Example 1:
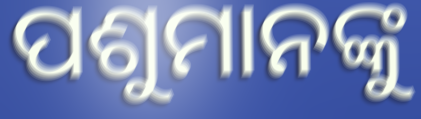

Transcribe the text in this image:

ପଶୁମାନଙ୍କୁ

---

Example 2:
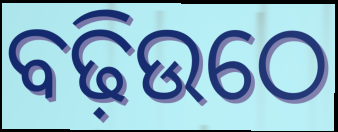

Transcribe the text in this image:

ବଢ଼ିଉଠେ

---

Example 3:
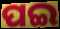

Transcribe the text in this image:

ପଇ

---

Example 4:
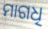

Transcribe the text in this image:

ମାଗଧି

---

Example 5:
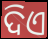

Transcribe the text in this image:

ଦିଏ